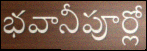
భవానీపూర్లో